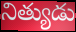
నిత్యుడు